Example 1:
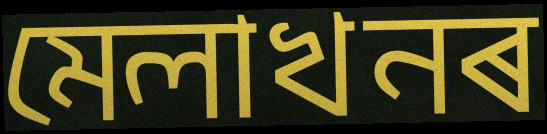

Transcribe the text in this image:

মেলাখনৰ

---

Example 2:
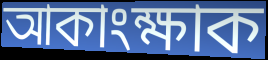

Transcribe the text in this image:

আকাংক্ষাক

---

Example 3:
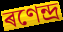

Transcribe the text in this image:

ৰণেন্দ্ৰ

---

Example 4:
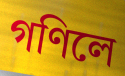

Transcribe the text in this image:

গণিলে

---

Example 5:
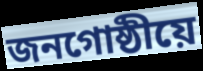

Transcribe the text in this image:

জনগোষ্ঠীয়ে